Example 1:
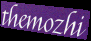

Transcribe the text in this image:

themozhi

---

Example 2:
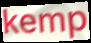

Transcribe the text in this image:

kemp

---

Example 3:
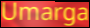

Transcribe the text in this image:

Umarga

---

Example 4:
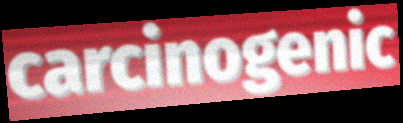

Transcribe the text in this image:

carcinogenic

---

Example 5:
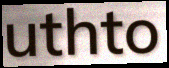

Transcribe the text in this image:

uthto